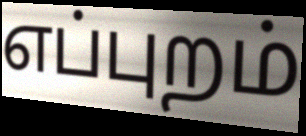
எப்புறம்